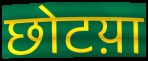
छोटय़ा